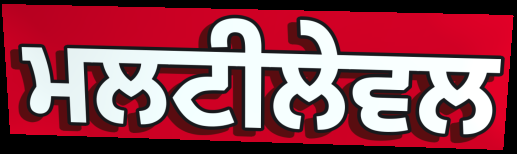
ਮਲਟੀਲੇਵਲ